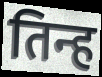
तिन्ह